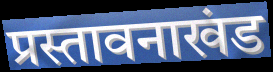
प्रस्तावनाखंड